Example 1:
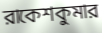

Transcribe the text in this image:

রাকেশকুমার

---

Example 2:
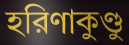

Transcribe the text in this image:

হরিণাকুণ্ডু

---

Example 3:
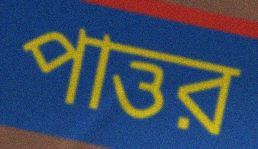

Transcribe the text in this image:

পাত্তর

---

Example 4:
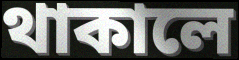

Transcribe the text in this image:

থাকালে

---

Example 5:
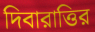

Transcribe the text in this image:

দিবারাত্তির